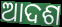
ଆଦଶ